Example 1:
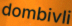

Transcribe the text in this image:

dombivli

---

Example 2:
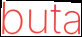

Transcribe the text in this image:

buta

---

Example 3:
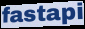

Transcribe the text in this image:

fastapi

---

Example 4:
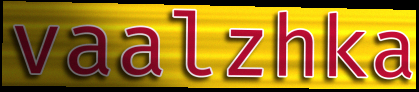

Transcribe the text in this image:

vaalzhka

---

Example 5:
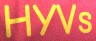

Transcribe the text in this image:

HYVs